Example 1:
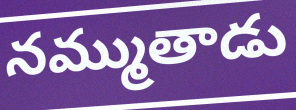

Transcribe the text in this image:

నమ్ముతాడు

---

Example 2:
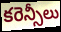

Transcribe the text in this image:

కరెన్సీలు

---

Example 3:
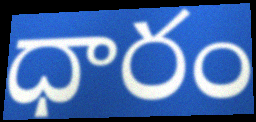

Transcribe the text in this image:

ధారం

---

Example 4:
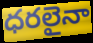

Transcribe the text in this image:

ధరలైనా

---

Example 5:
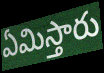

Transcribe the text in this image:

ఏమిస్తారు